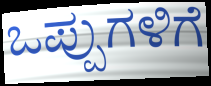
ಒಪ್ಪುಗಳಿಗೆ